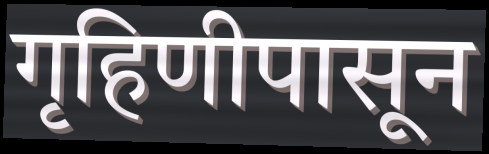
गृहिणीपासून